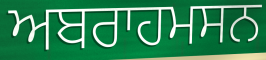
ਅਬਰਾਹਮਸਨ